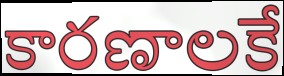
కారణాలకే